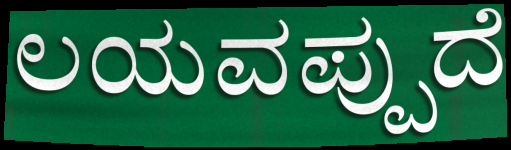
ಲಯವಪ್ಪುದೆ